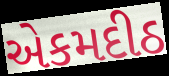
એકમદીઠ